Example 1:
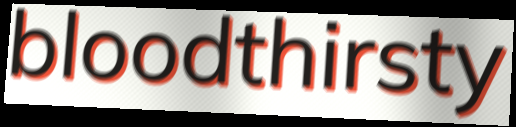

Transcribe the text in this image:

bloodthirsty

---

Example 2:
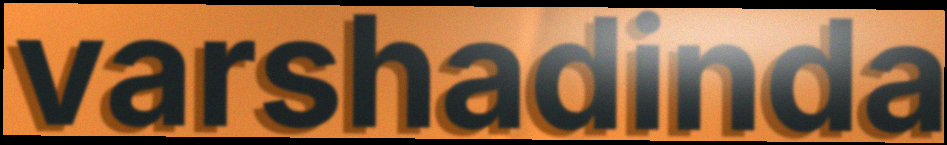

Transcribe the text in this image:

varshadinda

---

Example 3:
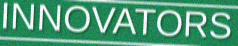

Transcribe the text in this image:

INNOVATORS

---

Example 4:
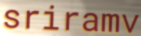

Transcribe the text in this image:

sriramv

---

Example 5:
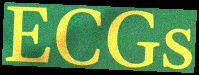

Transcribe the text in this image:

ECGs